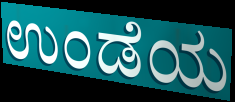
ಉಂಡೆಯ